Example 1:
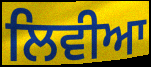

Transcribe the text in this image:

ਲਿਵੀਆ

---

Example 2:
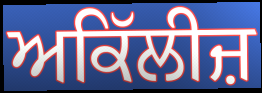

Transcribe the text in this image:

ਅਕਿੱਲੀਜ਼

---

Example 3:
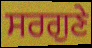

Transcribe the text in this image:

ਸਰਗੁਣੇ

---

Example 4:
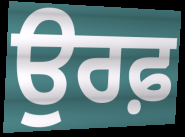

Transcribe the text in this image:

ਉਰਫ਼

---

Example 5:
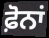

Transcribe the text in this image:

ਫ਼ੋਨਾਂ